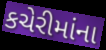
કચેરીમાંના